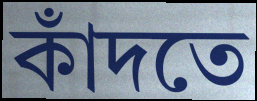
কাঁদতে